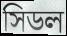
সিডল